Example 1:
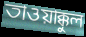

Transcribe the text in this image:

তাওয়াক্কুল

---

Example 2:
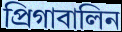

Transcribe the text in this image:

প্রিগাবালিন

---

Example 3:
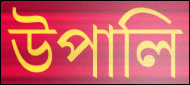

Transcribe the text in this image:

উপালি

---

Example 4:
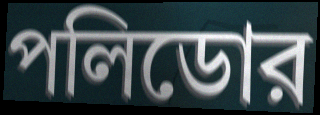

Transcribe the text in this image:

পলিডোর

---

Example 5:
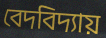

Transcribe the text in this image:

বেদবিদ্যায়